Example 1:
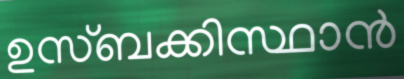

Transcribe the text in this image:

ഉസ്ബക്കിസ്ഥാൻ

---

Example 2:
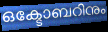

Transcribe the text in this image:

ഒക്ടോബറിനും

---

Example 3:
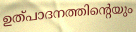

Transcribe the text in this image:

ഉത്പാദനത്തിന്റെയും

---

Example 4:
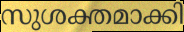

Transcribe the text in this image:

സുശക്തമാക്കി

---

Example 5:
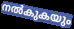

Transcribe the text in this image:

നൽകുകയും